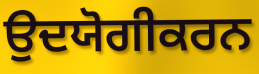
ਉਦਯੋਗੀਕਰਨ